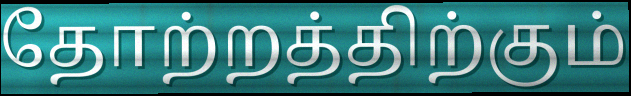
தோற்றத்திற்கும்